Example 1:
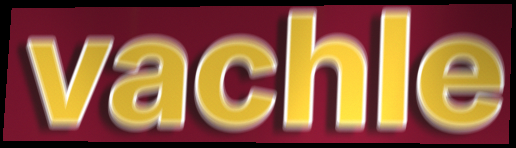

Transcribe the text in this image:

vachle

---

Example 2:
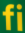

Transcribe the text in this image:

fi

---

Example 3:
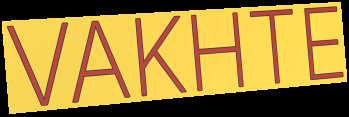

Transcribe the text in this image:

VAKHTE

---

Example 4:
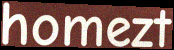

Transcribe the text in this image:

homezt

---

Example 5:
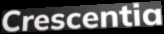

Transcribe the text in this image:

Crescentia